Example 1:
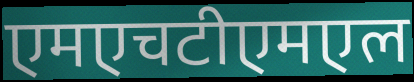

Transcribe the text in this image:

एमएचटीएमएल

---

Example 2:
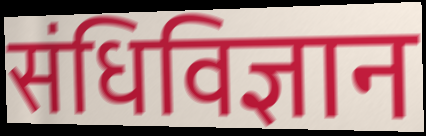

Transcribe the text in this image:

संधिविज्ञान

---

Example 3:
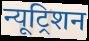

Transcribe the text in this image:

न्यूट्रिशन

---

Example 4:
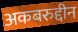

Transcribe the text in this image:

अकबरुद्दीन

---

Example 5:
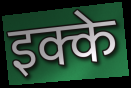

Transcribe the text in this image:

इक्के